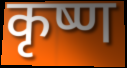
कृष्ण